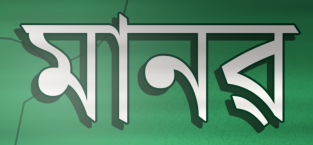
মানৱ